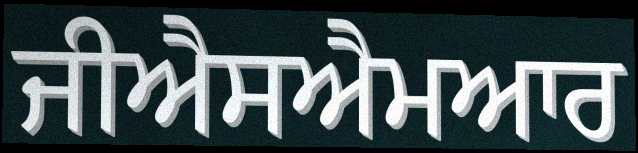
ਜੀਐਸਐਮਆਰ